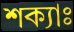
শক্যাঃ